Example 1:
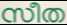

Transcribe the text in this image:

സീത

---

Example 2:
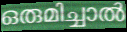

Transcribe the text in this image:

ഒരുമിച്ചാൽ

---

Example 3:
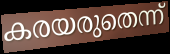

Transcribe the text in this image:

കരയരുതെന്ന്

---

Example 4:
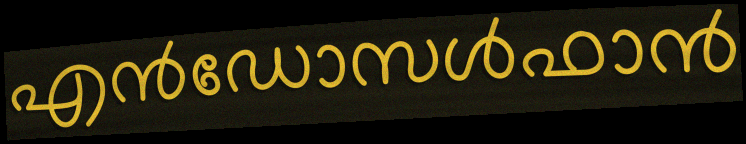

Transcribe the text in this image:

എൻഡോസൾഫാൻ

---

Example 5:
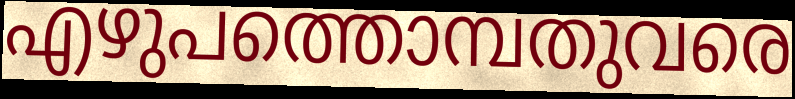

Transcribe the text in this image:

എഴുപത്തൊമ്പതുവരെ